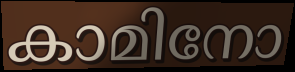
കാമിനോ